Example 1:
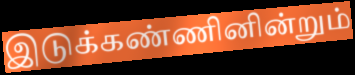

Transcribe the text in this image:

இடுக்கண்ணினின்றும்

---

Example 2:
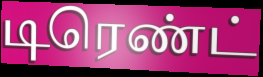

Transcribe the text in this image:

டிரெண்ட்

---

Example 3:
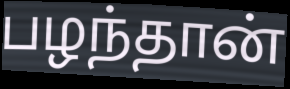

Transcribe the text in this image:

பழந்தான்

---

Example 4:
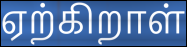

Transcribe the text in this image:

ஏற்கிறாள்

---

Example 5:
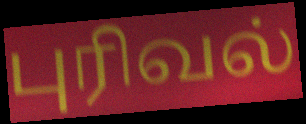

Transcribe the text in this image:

புரிவல்